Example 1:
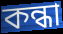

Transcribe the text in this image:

কন্ধা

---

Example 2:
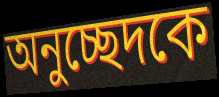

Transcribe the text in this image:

অনুচ্ছেদকে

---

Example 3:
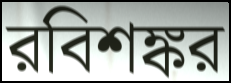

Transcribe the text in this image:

রবিশঙ্কর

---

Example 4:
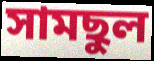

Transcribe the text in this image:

সামছুল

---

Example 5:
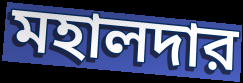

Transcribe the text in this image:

মহালদার